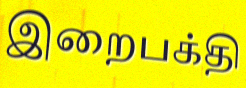
இறைபக்தி